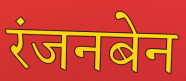
रंजनबेन